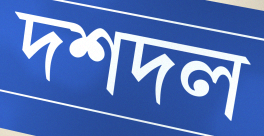
দশদল